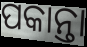
ପକାନ୍ତା